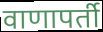
वाणापर्ती